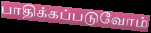
பாதிக்கப்படுவோம்